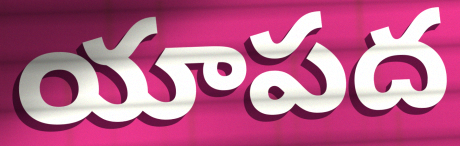
యాపద